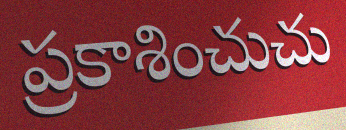
ప్రకాశించుచు